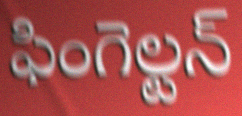
ఫింగెల్టన్